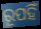
ରୂପହିଁ